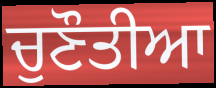
ਚੁਣੌਤੀਆ